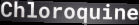
Chloroquine